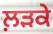
ਲ਼ਡ਼ਕੇ